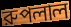
রুপলাল